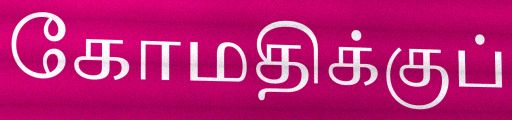
கோமதிக்குப்